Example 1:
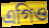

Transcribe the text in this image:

এগিও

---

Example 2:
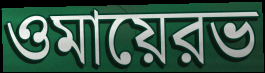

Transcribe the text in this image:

ওমায়েরভ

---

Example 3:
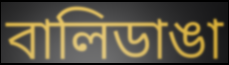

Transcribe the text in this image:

বালিডাঙা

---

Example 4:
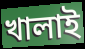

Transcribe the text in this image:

খালাই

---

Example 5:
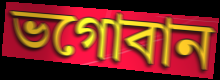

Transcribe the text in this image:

ভগোবান